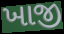
ખાજી